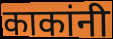
काकांनी